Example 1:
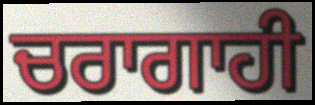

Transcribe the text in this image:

ਚਰਾਗਾਹੀ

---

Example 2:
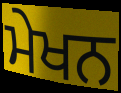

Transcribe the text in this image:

ਮੇਖਨ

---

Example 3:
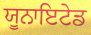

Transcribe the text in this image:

ਯੂਨਾਇਟੇਡ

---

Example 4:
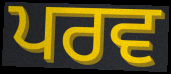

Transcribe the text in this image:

ਪਰਵ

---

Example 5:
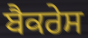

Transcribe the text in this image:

ਬੈਕਰੇਸ